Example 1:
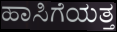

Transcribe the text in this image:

ಹಾಸಿಗೆಯತ್ತ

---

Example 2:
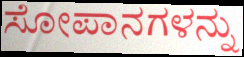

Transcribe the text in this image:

ಸೋಪಾನಗಳನ್ನು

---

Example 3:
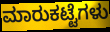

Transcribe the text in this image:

ಮಾರುಕಟ್ಟೆಗಳು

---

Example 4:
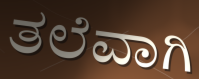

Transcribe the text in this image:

ತಲೆವಾಗಿ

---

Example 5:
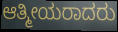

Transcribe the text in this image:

ಆತ್ಮೀಯರಾದರು